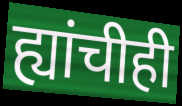
ह्यांचीही